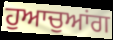
ਹੁਆਚੁਆਂਗ